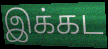
இக்கட